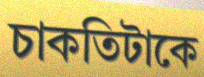
চাকতিটাকে